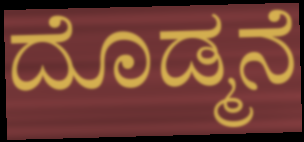
ದೊಡ್ಮನೆ